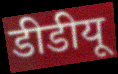
डीडीयू